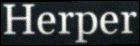
Herper